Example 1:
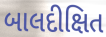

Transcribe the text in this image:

બાલદીક્ષિત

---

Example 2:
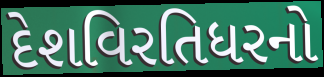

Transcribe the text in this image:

દેશવિરતિધરનો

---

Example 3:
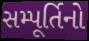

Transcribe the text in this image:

સમ્પૂર્તિનો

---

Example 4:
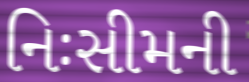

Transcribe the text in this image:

નિઃસીમની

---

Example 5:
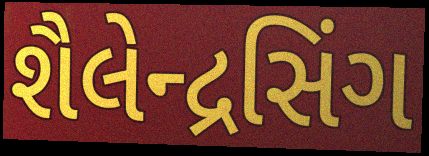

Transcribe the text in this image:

શૈલેન્દ્રસિંગ